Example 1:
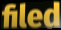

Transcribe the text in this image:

filed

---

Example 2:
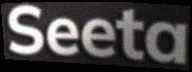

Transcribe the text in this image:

Seeta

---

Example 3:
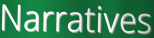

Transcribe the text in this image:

Narratives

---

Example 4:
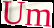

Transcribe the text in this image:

Um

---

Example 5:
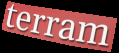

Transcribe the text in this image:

terram